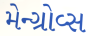
મેન્ગ્રોવ્સ